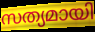
സത്യമായി